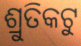
ଶ୍ରୁତିକଟୁ